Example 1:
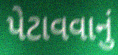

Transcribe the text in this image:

પેટાવવાનું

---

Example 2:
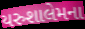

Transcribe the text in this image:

યરુશાલેમના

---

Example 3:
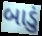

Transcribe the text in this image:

બાડું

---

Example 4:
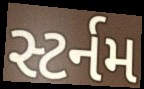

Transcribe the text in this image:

સ્ટર્નમ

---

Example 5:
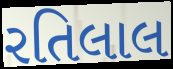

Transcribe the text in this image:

રતિલાલ